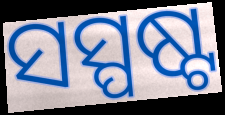
ସସ୍ପଷ୍ଟ